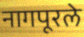
नागपूरले